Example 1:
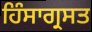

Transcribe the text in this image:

ਹਿੰਸਾਗ੍ਰਸਤ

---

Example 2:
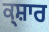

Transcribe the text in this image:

ਕ੍ਸ਼ਾਰ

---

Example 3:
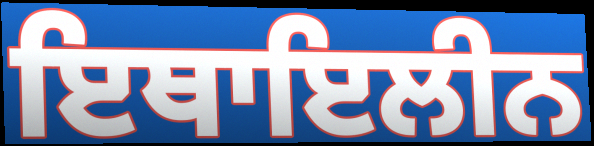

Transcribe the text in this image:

ਇਥਾਇਲੀਨ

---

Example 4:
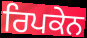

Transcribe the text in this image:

ਰਿਪਕੇਨ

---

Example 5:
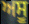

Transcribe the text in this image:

ਅਸੂ